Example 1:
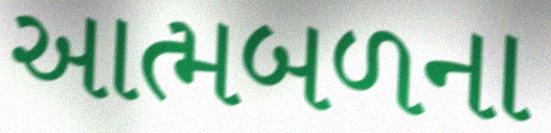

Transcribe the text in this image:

આત્મબળના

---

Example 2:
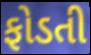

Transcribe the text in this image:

ફોડતી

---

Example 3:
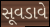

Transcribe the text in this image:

સૂવડાવે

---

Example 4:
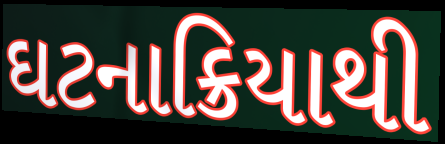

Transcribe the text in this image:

ઘટનાક્રિયાથી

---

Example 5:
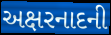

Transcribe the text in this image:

અક્ષરનાદની